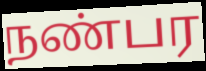
நண்பர